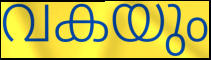
വകയും